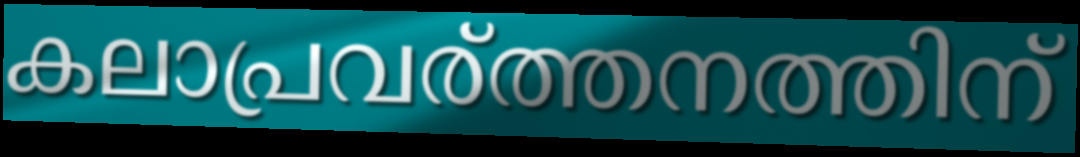
കലാപ്രവര്ത്തനത്തിന്